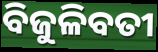
ବିଜୁଳିବତୀ